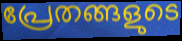
പ്രേതങ്ങളുടെ